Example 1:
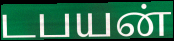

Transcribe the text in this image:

டபயன்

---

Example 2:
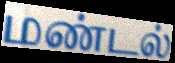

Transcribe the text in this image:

மண்டல்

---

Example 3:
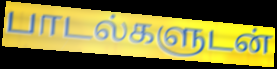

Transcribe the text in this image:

பாடல்களுடன்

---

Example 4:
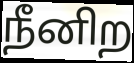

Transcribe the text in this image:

நீனிற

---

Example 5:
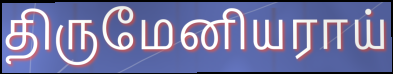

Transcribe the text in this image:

திருமேனியராய்